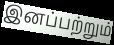
இனப்பற்றும்